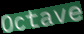
Octave